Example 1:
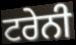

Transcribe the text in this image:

ਟਰੇਨੀ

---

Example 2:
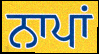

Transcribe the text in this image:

ਨਾਪਾਂ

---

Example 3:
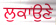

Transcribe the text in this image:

ਲੁਕਾਉਣੇ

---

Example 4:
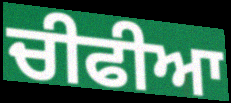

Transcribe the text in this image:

ਚੀਫੀਆ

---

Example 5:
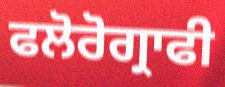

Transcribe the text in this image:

ਫਲੋਰੋਗ੍ਰਾਫੀ